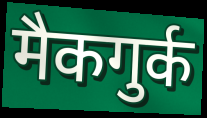
मैकगुर्क